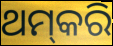
ଥମ୍‌କରି